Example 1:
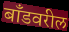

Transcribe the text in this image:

बॉंडवरील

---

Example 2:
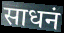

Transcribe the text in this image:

साधनं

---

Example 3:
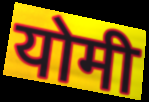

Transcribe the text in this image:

योमी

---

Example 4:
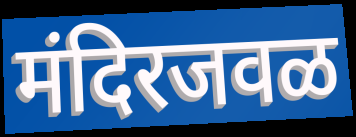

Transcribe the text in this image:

मंदिरजवळ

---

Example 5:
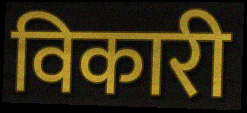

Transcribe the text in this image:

विकारी